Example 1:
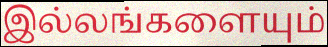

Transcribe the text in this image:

இல்லங்களையும்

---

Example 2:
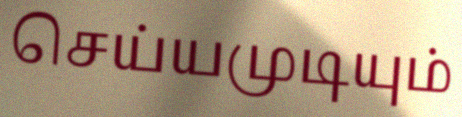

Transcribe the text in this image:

செய்யமுடியும்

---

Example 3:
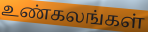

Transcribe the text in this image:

உண்கலங்கள்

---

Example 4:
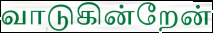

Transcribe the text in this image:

வாடுகின்றேன்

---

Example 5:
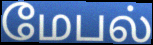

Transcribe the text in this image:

மேபல்